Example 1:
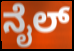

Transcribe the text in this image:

ನೈಲ್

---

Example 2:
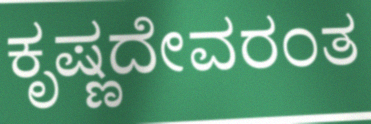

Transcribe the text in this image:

ಕೃಷ್ಣದೇವರಂತ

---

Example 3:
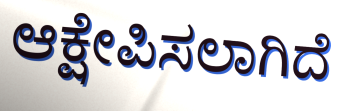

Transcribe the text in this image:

ಆಕ್ಷೇಪಿಸಲಾಗಿದೆ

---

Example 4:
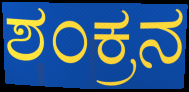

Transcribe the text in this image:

ಶಂಕ್ರನ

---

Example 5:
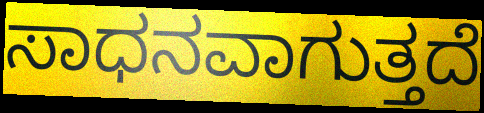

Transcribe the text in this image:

ಸಾಧನವಾಗುತ್ತದೆ